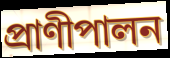
প্রাণীপালন